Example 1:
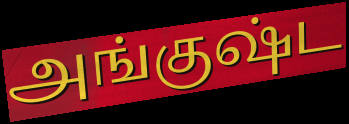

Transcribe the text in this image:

அங்குஷ்ட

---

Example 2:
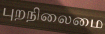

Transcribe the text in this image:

புறநிலைமை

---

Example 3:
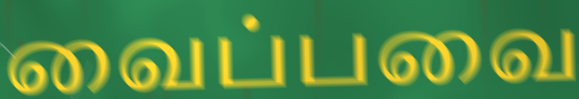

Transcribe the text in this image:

வைப்பவை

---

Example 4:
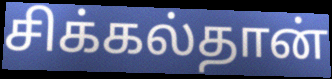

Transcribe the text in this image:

சிக்கல்தான்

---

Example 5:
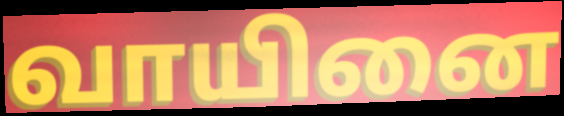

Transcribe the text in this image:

வாயினை